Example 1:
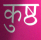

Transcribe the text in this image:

कुष्ठ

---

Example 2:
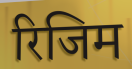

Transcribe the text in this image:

रिजिम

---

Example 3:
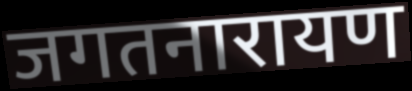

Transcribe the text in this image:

जगतनारायण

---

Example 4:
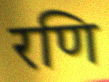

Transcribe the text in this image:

रणि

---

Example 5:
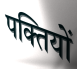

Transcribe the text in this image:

पक्तियों